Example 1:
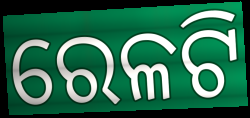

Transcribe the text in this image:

ରେଳଟି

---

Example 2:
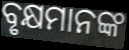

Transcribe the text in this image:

ବୃକ୍ଷମାନଙ୍କ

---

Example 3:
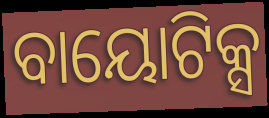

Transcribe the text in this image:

ବାୟୋଟିକ୍ସ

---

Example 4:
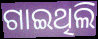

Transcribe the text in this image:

ଗାଇଥିଲି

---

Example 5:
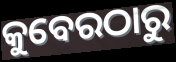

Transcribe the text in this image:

କୁବେରଠାରୁ